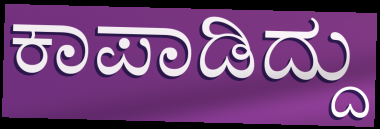
ಕಾಪಾಡಿದ್ದು